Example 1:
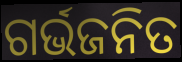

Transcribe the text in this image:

ଗର୍ଭଜନିତ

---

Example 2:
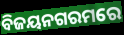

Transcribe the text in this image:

ବିଜୟନଗରମରେ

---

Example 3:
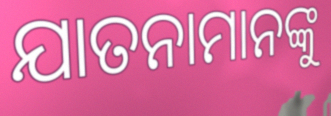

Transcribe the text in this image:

ଯାତନାମାନଙ୍କୁ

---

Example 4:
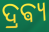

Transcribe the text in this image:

ଦ୍ରଵ୍ୟ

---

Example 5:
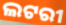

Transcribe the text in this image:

ଲଟରୀ